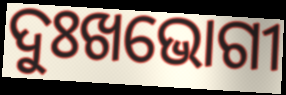
ଦୁଃଖଭୋଗୀ